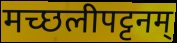
मच्छलीपट्टनम्